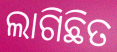
ଲାଗିଛିତ